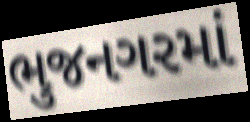
ભુજનગરમાં